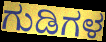
ಗುಡಿಗಳ